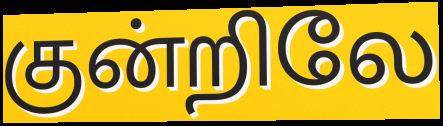
குன்றிலே